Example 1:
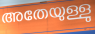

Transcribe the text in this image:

അതേയുള്ളു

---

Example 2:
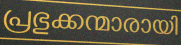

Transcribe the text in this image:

പ്രഭുക്കന്മാരായി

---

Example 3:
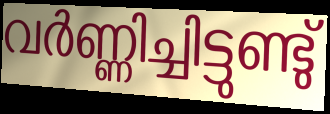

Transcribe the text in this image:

വർണ്ണിച്ചിട്ടുണ്ടു്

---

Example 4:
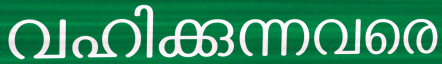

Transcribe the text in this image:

വഹിക്കുന്നവരെ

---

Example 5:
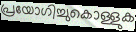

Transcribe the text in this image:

പ്രയോഗിച്ചുകൊള്ളുക